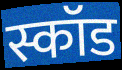
स्कॉड